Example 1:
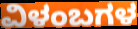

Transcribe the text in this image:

ವಿಳಂಬಗಳ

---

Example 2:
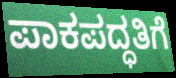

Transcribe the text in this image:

ಪಾಕಪದ್ಧತಿಗೆ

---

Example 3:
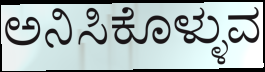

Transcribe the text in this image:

ಅನಿಸಿಕೊಳ್ಳುವ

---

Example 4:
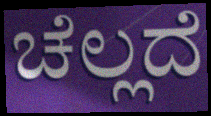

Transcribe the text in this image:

ಚೆಲ್ಲದೆ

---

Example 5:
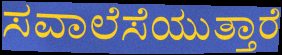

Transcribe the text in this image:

ಸವಾಲೆಸೆಯುತ್ತಾರೆ